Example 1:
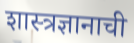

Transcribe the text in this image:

शास्त्रज्ञानाची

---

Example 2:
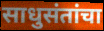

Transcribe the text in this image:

साधुसंतांचा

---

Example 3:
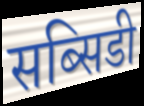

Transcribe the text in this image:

सब्सिडी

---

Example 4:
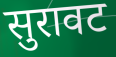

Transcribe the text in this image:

सुरावट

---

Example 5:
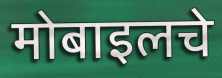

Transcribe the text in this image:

मोबाइलचे